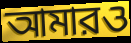
আমারও